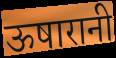
ऊषारानी